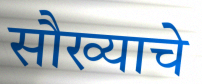
सौख्याचे